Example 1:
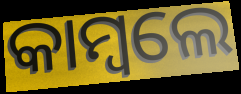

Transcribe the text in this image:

କାମ୍ବଲେ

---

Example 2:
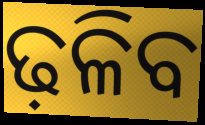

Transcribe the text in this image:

ଢ଼ଳିବ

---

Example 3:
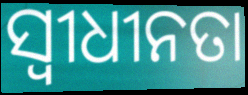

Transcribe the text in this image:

ସ୍ୱୀଧୀନତା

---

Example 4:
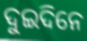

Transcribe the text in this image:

ଦୁଇଦିନେ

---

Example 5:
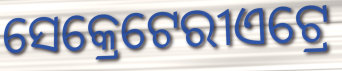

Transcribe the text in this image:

ସେକ୍ରେଟେରୀଏଟ୍ରେ